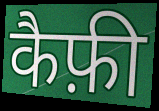
कैफ़ी